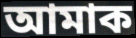
আমাক